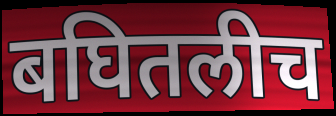
बघितलीच